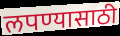
लपण्यासाठी